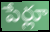
పేర్లూ